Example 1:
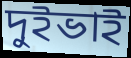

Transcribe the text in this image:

দুইভাই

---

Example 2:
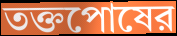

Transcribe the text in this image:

তক্তপোষের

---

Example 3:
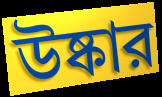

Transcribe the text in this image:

উষ্কার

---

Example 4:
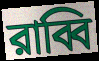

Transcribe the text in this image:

রাব্বি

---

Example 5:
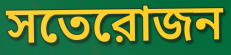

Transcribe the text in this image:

সতেরোজন